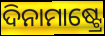
ଦିନାମାଷ୍ଟ୍ରେ